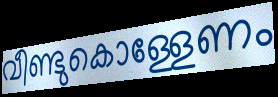
വീണ്ടുകൊള്ളേണം